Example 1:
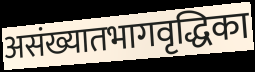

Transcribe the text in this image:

असंख्यातभागवृद्धिका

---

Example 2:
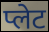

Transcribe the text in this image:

प्‍लेट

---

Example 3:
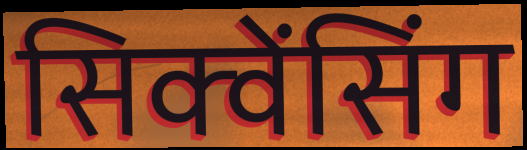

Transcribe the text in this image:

सिक्‍वेंसिंग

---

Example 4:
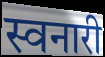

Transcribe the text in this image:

स्वनारी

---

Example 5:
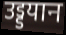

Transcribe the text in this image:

उड्डयान